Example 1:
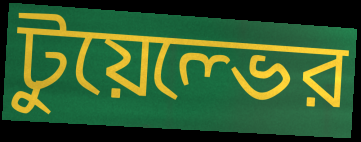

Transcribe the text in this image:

টুয়েল্ভের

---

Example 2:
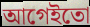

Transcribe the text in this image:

আগেইতো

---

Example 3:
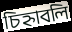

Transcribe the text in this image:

চিহ্নাবলি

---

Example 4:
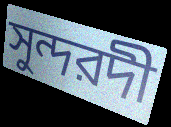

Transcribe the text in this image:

সুন্দরদী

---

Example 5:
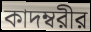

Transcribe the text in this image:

কাদম্বরীর